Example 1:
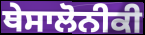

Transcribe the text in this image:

ਥੇਸਾਲੋਨੀਕੀ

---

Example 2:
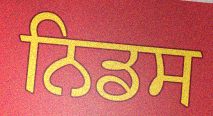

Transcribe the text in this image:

ਨਿਡਸ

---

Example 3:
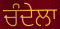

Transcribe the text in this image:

ਚੰਦੇਲਾ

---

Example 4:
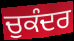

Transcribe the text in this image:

ਚੁਕੰਦਰ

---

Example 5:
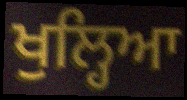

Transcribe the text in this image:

ਖੁਲ੍ਹਿਆ